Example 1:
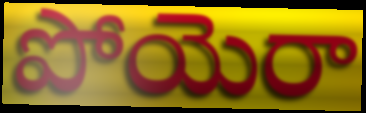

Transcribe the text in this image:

పోయెరా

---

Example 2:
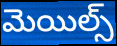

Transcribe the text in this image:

మెయిల్స్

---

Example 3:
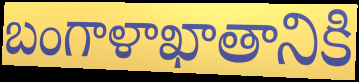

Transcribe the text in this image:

బంగాళాఖాతానికి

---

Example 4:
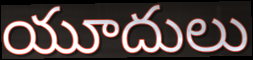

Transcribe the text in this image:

యూదులు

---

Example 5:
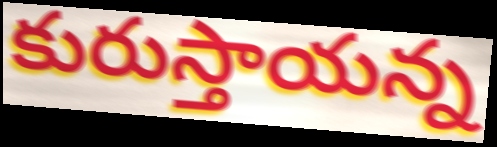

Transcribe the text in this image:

కురుస్తాయన్న